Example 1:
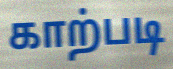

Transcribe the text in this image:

காற்படி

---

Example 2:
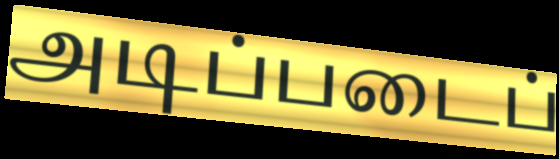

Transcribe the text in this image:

அடிப்படைப்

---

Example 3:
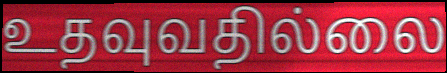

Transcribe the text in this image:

உதவுவதில்லை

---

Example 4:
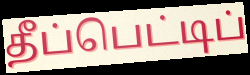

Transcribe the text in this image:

தீப்பெட்டிப்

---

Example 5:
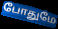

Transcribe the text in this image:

போதுமே